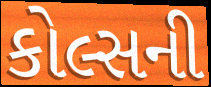
કોલ્સની